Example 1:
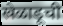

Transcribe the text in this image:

खेळाडूची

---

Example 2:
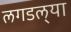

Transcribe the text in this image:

लगडल्या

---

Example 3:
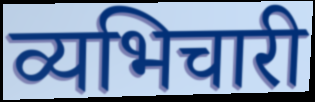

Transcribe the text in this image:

व्यभिचारी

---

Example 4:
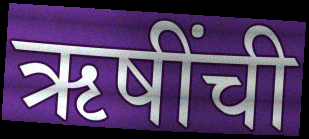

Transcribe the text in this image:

ऋषींची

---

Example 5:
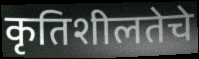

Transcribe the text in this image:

कृतिशीलतेचे